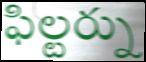
ఫిల్టర్ను